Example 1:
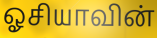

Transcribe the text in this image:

ஓசியாவின்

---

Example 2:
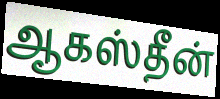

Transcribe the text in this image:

ஆகஸ்தீன்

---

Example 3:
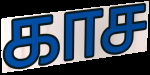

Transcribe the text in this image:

காச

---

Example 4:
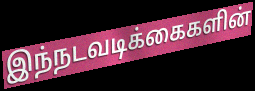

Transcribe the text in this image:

இந்நடவடிக்கைகளின்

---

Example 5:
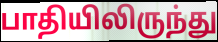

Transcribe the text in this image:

பாதியிலிருந்து